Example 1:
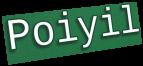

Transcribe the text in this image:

Poiyil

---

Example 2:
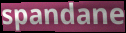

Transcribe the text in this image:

spandane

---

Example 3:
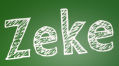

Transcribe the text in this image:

Zeke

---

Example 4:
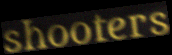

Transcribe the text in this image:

shooters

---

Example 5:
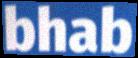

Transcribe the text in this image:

bhab